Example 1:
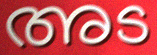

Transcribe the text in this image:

അട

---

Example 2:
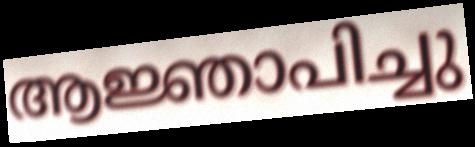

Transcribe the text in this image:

ആജ്ഞാപിച്ചു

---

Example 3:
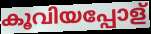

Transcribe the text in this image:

കൂവിയപ്പോള്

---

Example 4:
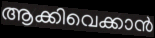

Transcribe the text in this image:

ആക്കിവെക്കാൻ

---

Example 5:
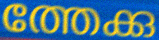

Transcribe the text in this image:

ത്തേക്കു